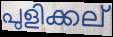
പുളിക്കല്